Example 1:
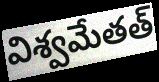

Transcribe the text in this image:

విశ్వమేతత్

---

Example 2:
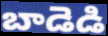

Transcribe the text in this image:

బాడెడి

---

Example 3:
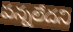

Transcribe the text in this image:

పన్నలేదని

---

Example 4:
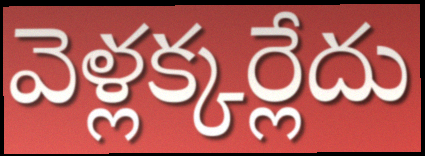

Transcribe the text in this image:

వెళ్లక్కర్లేదు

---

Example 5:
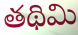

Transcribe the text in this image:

తథిమి